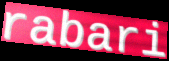
rabari